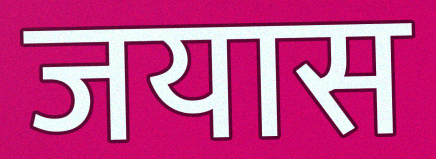
जयास